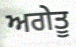
ਅਗੇਤੂ